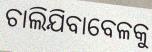
ଚାଲିଯିବାବେଳକୁ